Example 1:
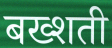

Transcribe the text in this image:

बख्शती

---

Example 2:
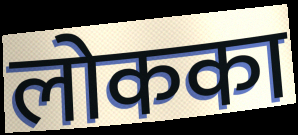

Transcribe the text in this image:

लोकका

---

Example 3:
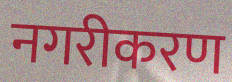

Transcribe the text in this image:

नगरीकरण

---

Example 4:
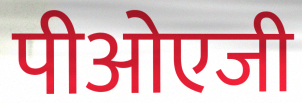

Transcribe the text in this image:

पीओएजी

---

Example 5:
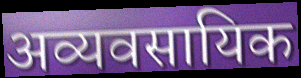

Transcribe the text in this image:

अव्यवसायिक